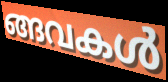
ങ്ങവകൾ